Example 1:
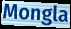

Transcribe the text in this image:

Mongla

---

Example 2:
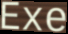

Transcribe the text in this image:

Exe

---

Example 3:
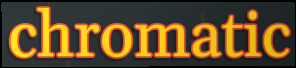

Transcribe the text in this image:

chromatic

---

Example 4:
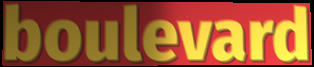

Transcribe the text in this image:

boulevard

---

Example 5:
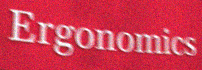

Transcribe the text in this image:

Ergonomics